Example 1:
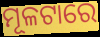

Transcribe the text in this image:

ମୂଳଟାରେ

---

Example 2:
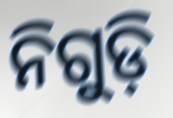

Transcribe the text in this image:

ନିଗୁଡ଼ି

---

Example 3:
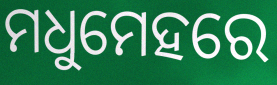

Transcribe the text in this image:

ମଧୁମେହରେ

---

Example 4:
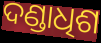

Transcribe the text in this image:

ଦଣ୍ଡାଧିଶ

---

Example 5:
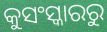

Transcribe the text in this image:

କୁସଂସ୍କାରରୁ